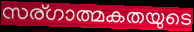
സര്ഗാത്മകതയുടെ